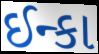
ઈન્કા